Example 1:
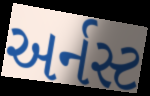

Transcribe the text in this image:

અર્નસ્ટ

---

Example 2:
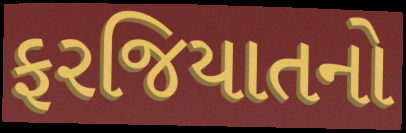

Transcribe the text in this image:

ફરજિયાતનો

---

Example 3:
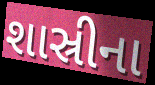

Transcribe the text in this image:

શાસ્રીના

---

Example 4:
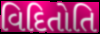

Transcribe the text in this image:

વિદિતોતિ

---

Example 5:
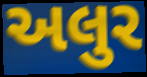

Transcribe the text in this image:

અલુર